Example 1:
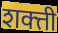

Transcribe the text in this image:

शक्त्ती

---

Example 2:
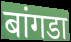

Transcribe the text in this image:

बांगडा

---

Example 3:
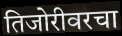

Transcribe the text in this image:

तिजोरीवरचा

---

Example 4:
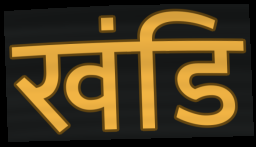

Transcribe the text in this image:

खंडि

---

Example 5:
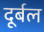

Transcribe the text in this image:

दूर्बल